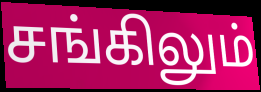
சங்கிலும்